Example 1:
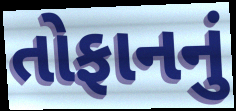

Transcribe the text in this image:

તોફાનનું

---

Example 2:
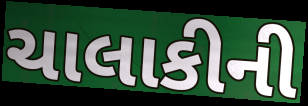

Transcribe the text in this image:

ચાલાકીની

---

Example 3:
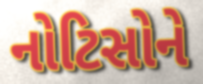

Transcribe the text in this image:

નોટિસોને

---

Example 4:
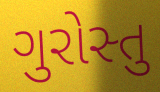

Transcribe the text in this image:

ગુરોસ્તુ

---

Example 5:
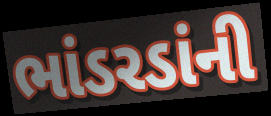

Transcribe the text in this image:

ભાંડરડાંની